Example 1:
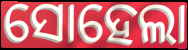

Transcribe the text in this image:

ସୋହେଲା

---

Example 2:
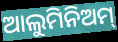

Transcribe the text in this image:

ଆଲୁମିନିଅମ୍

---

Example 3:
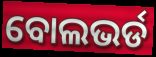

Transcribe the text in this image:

ବୋଲଭର୍ଡ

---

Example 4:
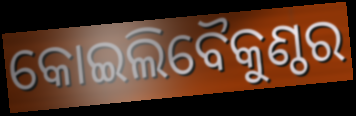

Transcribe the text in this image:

କୋଇଲିବୈକୁଣ୍ଠର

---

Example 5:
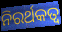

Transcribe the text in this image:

ନିରର୍ଥକତ୍ୱ